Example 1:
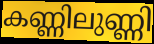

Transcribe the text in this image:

കണ്ണിലുണ്ണി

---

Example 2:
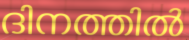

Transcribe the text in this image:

ദിനത്തിൽ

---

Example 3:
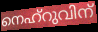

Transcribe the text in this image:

നെഹ്റുവിന്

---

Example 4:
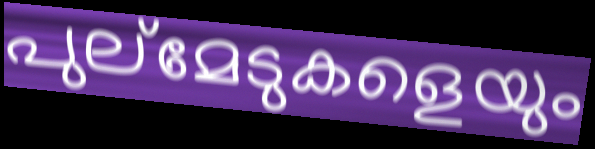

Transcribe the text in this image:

പുല്മേടുകളെയും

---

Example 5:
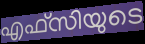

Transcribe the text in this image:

എഫ്സിയുടെ